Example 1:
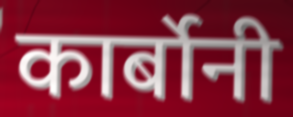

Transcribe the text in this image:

कार्बोनी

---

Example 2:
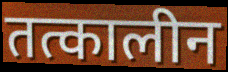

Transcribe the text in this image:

तत्कालीन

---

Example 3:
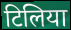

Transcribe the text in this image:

टिलिया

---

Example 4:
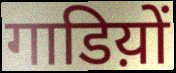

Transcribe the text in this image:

गाडिय़ों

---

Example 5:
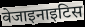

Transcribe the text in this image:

वेजाइनाइटिस